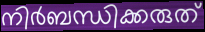
നിർബന്ധിക്കരുത്